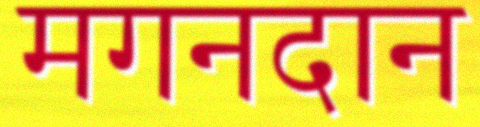
मगनदान